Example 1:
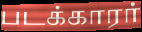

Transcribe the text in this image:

படக்காரர்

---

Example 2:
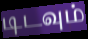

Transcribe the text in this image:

டிடவும்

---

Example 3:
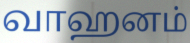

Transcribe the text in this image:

வாஹனம்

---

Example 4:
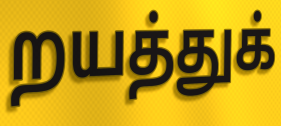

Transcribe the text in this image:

றயத்துக்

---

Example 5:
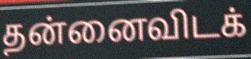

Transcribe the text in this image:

தன்னைவிடக்